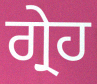
ਗ੍ਰੇਹ